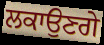
ਲਕਾਉਣਗੇ